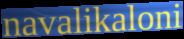
navalikaloni